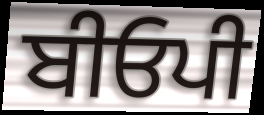
ਬੀਓਪੀ